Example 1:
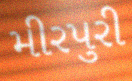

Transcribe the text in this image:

મીરપુરી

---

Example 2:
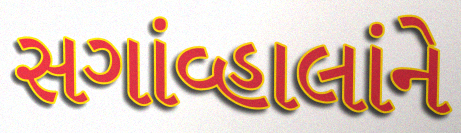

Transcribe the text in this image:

સગાંવ્હાલાંને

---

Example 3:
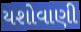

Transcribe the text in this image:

યશોવાણી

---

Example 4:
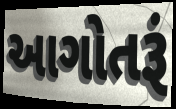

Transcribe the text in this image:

આગોતરૂં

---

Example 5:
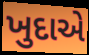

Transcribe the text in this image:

ખુદાએ